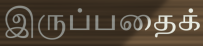
இருப்பதைக்